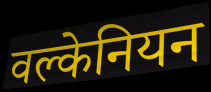
वल्केनियन